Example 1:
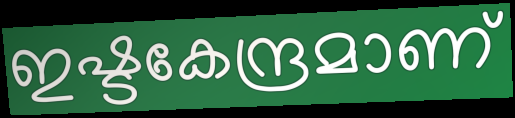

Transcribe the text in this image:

ഇഷ്ടകേന്ദ്രമാണ്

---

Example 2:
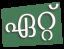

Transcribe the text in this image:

ഏറ്റ്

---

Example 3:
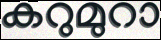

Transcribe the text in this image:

കറുമുറാ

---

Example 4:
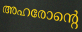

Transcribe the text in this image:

അഹരോന്റെ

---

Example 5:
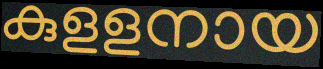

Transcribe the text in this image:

കുളളനായ